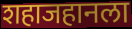
शहाजहानला